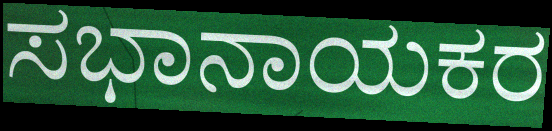
ಸಭಾನಾಯಕರ